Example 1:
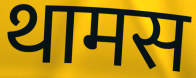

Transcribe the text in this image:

थामस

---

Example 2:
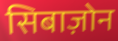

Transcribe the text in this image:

सिबाज़ोन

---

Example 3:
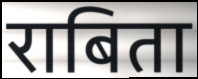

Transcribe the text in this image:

राबिता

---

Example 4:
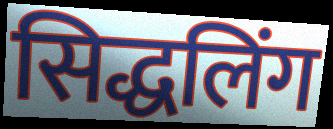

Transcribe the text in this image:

सिद्धलिंग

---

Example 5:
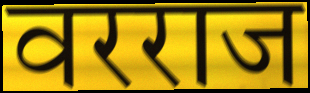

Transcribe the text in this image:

वरराज